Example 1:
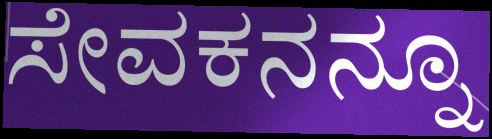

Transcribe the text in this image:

ಸೇವಕನನ್ನೂ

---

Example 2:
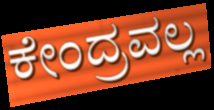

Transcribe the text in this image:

ಕೇಂದ್ರವಲ್ಲ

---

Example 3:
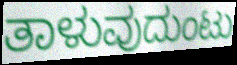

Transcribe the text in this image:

ತಾಳುವುದುಂಟು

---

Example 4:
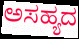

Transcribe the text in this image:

ಅಸಹ್ಯದ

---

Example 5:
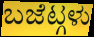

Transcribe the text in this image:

ಬಜೆಟ್ಗಳು